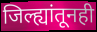
जिल्ह्यांतूनही